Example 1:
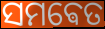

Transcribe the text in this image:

ସମଵେତ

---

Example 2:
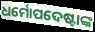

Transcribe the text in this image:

ଧର୍ମୋପଦେଷ୍ଟାଙ୍କ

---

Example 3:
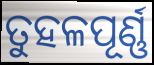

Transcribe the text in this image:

ତୁହଳପୂର୍ଣ୍ଣ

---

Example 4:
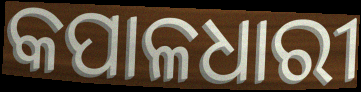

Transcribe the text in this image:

କପାଳଧାରୀ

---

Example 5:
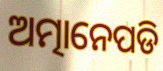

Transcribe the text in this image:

ଅତ୍ମାନେପଡି